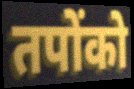
तपोंको